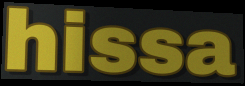
hissa